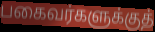
பகைவர்களுக்குத்